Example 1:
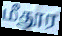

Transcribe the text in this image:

மீதூர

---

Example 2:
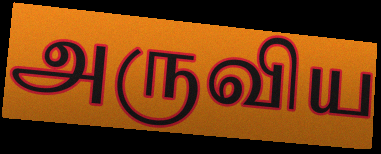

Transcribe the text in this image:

அருவிய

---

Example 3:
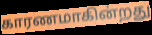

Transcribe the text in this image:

காரணமாகின்றது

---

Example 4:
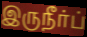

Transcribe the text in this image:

இருநீர்ப்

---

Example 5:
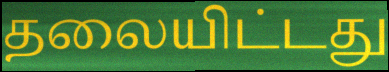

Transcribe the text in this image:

தலையிட்டது